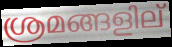
ശ്രമങ്ങളില്